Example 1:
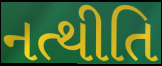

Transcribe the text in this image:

નત્થીતિ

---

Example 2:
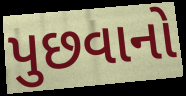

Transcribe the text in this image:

પુછવાનો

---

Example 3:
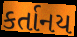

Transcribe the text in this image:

કર્તાનય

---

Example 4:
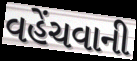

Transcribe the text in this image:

વહેંચવાની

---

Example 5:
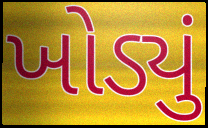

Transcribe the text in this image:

ખોડ્યું